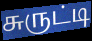
சுருட்டி